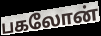
பகலோன்